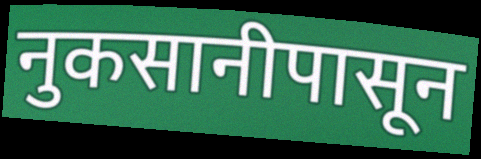
नुकसानीपासून